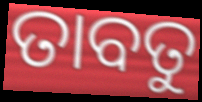
ତାବତୁ